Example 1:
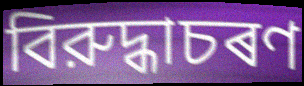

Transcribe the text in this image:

বিৰুদ্ধাচৰণ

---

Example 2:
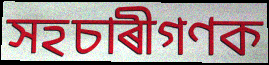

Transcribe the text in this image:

সহচাৰীগণক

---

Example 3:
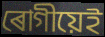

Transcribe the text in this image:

ৰোগীয়েই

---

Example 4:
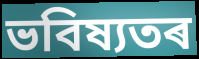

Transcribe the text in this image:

ভবিষ্যতৰ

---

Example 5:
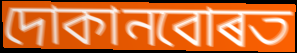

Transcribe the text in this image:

দোকানবোৰত